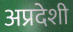
अप्रदेशी